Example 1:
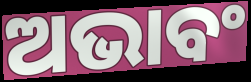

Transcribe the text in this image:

ଅଭାବଂ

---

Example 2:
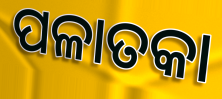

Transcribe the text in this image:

ପଳାତକା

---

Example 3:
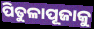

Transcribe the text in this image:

ପିତୁଳାପୂଜାକୁ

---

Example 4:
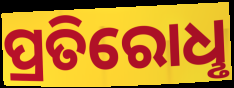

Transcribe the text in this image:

ପ୍ରତିରୋଧୢ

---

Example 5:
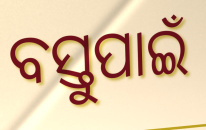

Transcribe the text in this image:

ବସ୍ତୁପାଇଁ